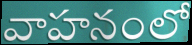
వాహనంలో